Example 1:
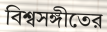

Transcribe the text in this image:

বিশ্বসঙ্গীতের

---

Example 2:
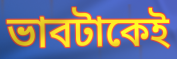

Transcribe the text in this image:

ভাবটাকেই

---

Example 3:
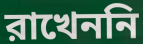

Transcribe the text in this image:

রাখেননি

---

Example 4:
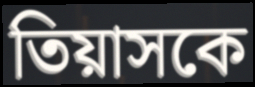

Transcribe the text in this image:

তিয়াসকে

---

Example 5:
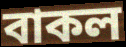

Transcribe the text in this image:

বাকল